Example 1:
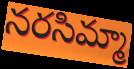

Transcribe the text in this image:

నరసిమ్మా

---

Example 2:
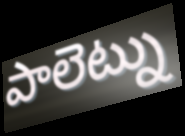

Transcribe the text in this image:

పాలెట్ను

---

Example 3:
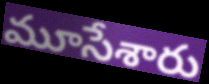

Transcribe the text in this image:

మూసేశారు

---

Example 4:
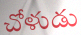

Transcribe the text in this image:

చోళుడు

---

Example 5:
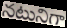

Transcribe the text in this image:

నటునిగా